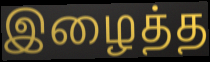
இழைத்த